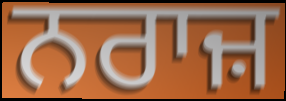
ਨਰਾਜ਼